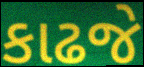
કાઢજે